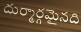
దుర్మార్గమైనది